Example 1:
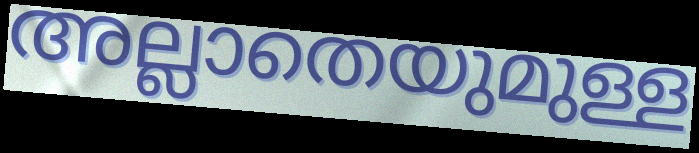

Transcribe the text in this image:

അല്ലാതെയുമുള്ള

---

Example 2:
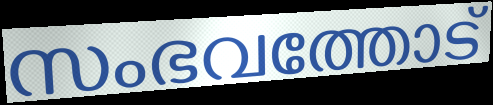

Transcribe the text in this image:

സംഭവത്തോട്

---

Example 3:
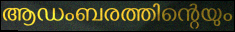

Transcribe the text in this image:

ആഡംബരത്തിന്റെയും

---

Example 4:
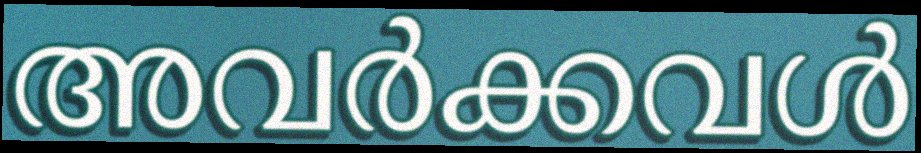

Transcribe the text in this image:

അവർക്കവൾ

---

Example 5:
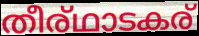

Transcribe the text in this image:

തീര്ഥാടകര്